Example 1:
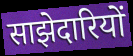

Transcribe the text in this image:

साझेदारियों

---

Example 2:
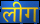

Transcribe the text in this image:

लीग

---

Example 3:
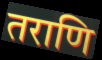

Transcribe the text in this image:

तराणि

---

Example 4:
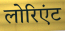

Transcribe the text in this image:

लोरिएंट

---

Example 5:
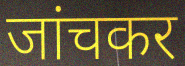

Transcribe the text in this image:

जांचकर